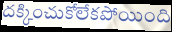
దక్కించుకోలేకపోయింది